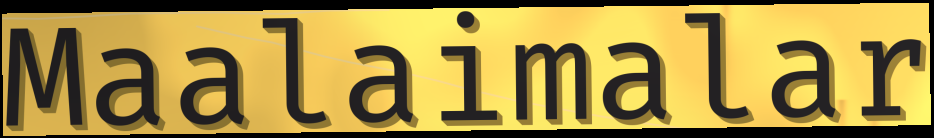
Maalaimalar